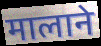
मालाने